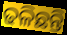
ଢଳିଛନ୍ତି